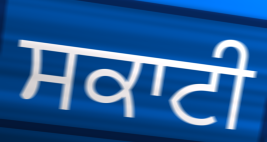
ਸਕਾਟੀ